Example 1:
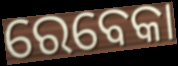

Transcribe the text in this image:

ରେବେକା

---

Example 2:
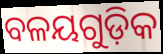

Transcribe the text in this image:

ବଳୟଗୁଡ଼ିକ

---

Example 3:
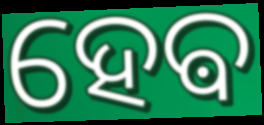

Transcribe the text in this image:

ହେଵ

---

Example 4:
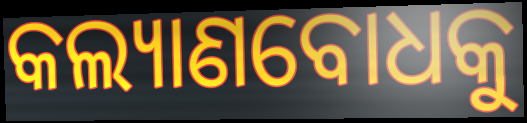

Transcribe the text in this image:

କଲ୍ୟାଣବୋଧକୁ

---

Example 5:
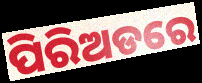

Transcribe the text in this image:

ପିରିଅଡରେ